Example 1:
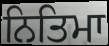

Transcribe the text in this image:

ਨਿਤਿਮਾ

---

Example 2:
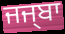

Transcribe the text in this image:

ਜਜ੍ਬਾ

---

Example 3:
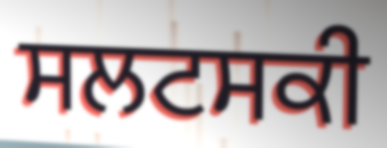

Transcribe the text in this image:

ਸਲਟਸਕੀ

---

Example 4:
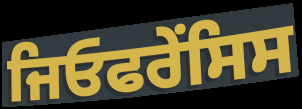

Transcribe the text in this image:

ਜਿਓਫਰੇਂਸਿਸ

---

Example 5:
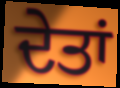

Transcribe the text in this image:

ਦੇਤਾਂ